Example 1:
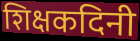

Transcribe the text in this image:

शिक्षकदिनी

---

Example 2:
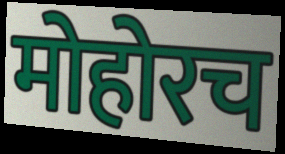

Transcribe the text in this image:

मोहोरच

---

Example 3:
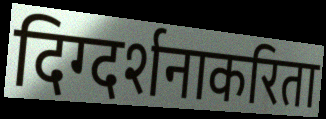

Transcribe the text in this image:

दिग्दर्शनाकरिता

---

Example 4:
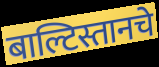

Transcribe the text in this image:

बाल्टिस्तानचे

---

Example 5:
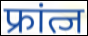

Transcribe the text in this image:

फ्रांत्ज